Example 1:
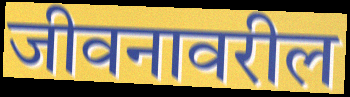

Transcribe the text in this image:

जीवनावरील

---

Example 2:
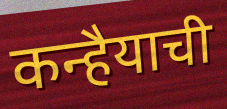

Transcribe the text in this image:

कन्हैयाची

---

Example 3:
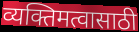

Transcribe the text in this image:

व्यक्तिमत्वासाठी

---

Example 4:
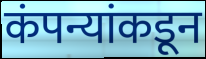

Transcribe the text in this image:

कंपन्यांकडून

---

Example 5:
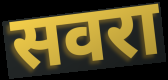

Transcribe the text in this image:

सवरा